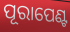
ପୂରାପେଣ୍ଟ